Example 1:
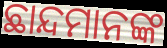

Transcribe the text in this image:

ଛାନ୍ଦମାନଙ୍କ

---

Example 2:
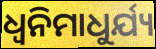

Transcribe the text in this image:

ଧ୍ୱନିମାଧୁର୍ଯ୍ୟ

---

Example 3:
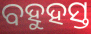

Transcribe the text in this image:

ବହୁହସ୍ତ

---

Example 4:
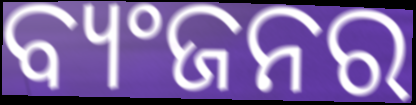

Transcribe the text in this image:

ବ୍ୟଂଜନର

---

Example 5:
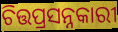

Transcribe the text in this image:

ଚିତ୍ତପ୍ରସନ୍ନକାରୀ